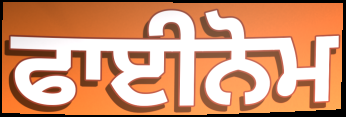
ਫਾਈਨੋਮ